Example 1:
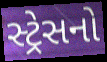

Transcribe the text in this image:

સ્ટ્રેસનો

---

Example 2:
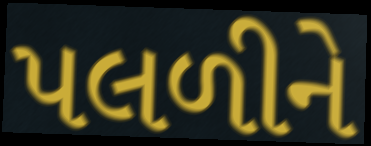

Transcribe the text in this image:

પલળીને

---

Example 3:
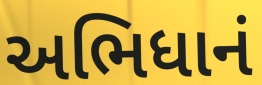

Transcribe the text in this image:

અભિધાનં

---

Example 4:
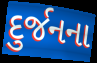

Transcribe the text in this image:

દુર્જનના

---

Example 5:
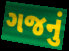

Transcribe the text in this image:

ગજનું